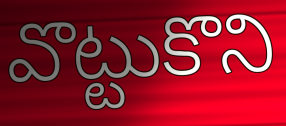
వొట్టుకొని